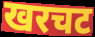
खरचट